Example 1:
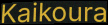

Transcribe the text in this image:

Kaikoura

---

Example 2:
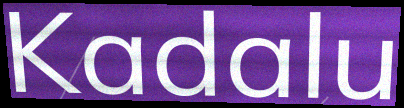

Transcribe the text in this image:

Kadalu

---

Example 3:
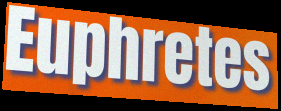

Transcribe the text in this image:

Euphretes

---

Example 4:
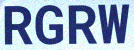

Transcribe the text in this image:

RGRW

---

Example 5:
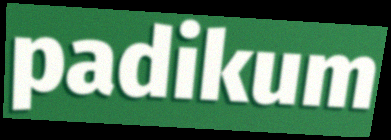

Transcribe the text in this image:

padikum